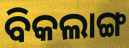
ବିକଲାଙ୍ଗ